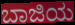
ಬಾಜಿಯ